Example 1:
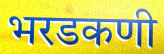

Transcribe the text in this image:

भरडकणी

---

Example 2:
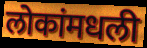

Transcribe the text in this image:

लोकांमधली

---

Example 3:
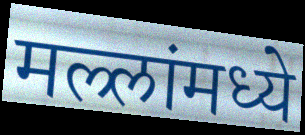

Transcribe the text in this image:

मल्लांमध्ये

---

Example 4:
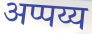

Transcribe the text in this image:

अप्पय्य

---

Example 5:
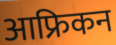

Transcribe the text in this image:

आफ्रिकन